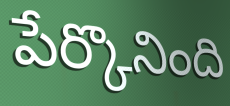
పేర్కొనింది